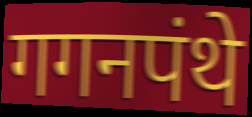
गगनपंथे